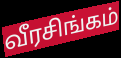
வீரசிங்கம்